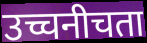
उच्चनीचता